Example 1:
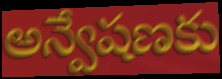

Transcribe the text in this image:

అన్వేషణకు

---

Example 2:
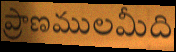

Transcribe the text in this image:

ప్రాణములమీది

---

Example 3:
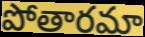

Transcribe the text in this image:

పోతారమా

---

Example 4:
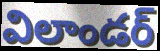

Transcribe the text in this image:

విలాండర్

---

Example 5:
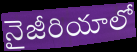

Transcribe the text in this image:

నైజీరియాలో